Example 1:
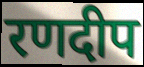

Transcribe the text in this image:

रणदीप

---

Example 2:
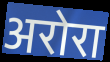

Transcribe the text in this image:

अरोरा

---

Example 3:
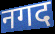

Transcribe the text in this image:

नगद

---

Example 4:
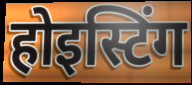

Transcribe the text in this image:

होइस्टिंग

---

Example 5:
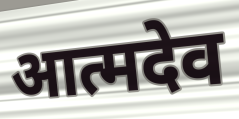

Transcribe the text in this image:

आत्मदेव